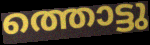
ത്തൊട്ടു